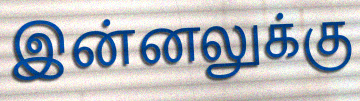
இன்னலுக்கு